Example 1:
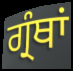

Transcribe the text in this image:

ਗ੍ਰੰਥਾਂ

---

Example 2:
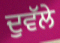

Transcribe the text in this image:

ਦੁਵੱਲੇ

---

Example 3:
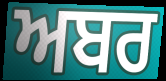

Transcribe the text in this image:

ਅਬਰ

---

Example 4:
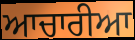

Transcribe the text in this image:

ਆਚਾਰੀਆ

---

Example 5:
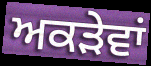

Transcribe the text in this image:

ਅਕੜੇਵਾਂ